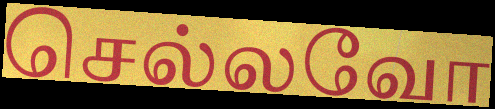
செல்லவோ